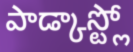
పాడ్కాస్ట్లో